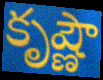
కృష్ణౌ